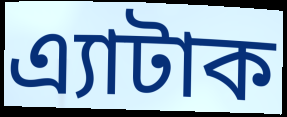
এ্যাটাক